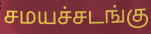
சமயச்சடங்கு